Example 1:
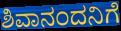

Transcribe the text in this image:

ಶಿವಾನಂದನಿಗೆ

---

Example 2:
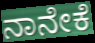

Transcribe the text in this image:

ನಾನೇಕೆ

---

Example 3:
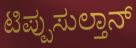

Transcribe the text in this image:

ಟಿಪ್ಪುಸುಲ್ತಾನ್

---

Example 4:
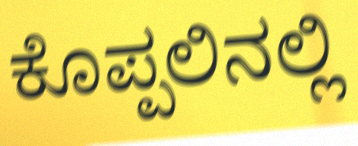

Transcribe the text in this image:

ಕೊಪ್ಪಲಿನಲ್ಲಿ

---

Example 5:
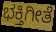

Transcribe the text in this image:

ಭಕ್ತಿಗೀತೆ